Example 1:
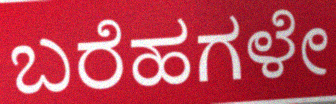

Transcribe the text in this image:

ಬರೆಹಗಳೇ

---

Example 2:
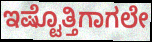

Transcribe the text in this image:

ಇಷ್ಟೊತ್ತಿಗಾಗಲೇ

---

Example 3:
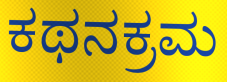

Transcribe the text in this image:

ಕಥನಕ್ರಮ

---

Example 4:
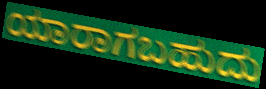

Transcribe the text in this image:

ಯಾರಾಗಬಹುದು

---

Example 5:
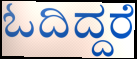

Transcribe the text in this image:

ಓದಿದ್ದರೆ